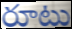
రూటు